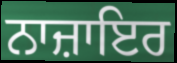
ਨਾਜ਼ਾਇਰ